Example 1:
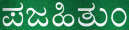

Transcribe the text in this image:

ಪಜಹಿತುಂ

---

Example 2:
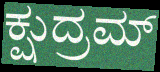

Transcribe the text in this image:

ಕ್ಷುದ್ರಮ್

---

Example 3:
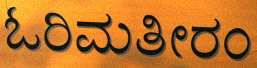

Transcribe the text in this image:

ಓರಿಮತೀರಂ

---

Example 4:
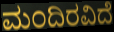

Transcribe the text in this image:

ಮಂದಿರವಿದೆ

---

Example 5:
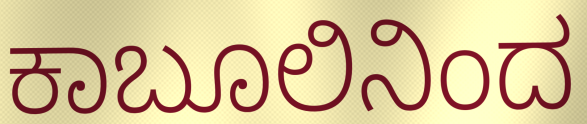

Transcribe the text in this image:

ಕಾಬೂಲಿನಿಂದ